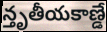
న్తృతీయకాణ్డే